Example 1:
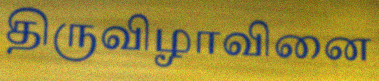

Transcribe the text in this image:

திருவிழாவினை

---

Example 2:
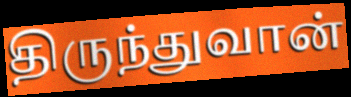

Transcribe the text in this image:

திருந்துவான்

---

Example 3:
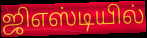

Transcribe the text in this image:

ஜிஎஸ்டியில்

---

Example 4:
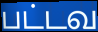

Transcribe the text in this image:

பட்டவ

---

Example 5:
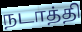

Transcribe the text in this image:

நடாத்தி